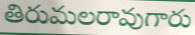
తిరుమలరావుగారు